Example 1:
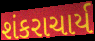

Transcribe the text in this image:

શંકરાચાર્ય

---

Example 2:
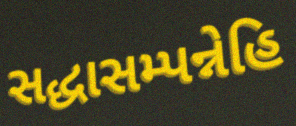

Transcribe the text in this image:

સદ્ધાસમ્પન્નેહિ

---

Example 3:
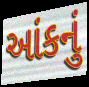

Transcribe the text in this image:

આંકનું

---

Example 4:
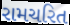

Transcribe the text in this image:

રામચરિત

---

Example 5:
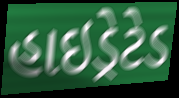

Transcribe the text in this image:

હાઇડ્રેટેડ